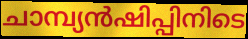
ചാമ്പ്യൻഷിപ്പിനിടെ